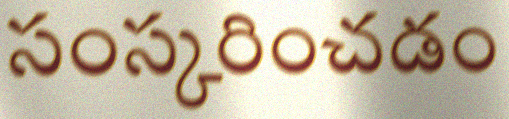
సంస్కరించడం